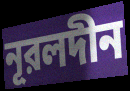
নূরলদীন